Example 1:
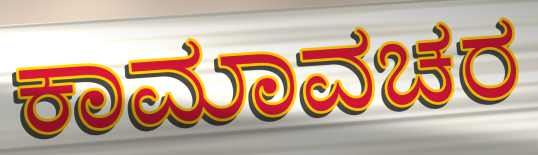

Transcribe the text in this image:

ಕಾಮಾವಚರ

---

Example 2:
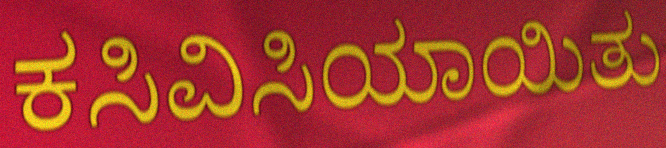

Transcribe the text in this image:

ಕಸಿವಿಸಿಯಾಯಿತು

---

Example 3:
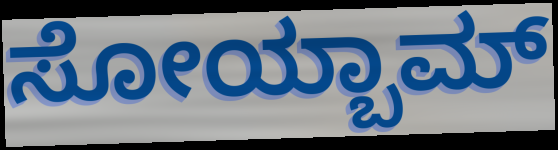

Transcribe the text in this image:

ಸೋಯ್ಬಾಮ್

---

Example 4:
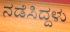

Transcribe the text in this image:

ನಡೆಸಿದ್ದಳು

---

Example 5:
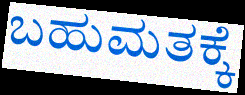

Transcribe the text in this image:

ಬಹುಮತಕ್ಕೆ